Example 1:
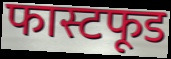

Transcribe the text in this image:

फास्टफूड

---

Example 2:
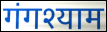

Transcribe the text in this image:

गंगश्याम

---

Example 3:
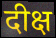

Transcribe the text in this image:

दीक्ष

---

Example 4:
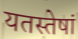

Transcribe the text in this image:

यतस्तेषां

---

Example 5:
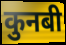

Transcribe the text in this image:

कुनबी